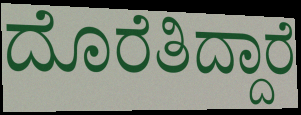
ದೊರೆತಿದ್ದಾರೆ